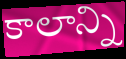
కాలాన్ని